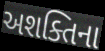
અશક્તિના